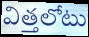
విత్తలోటు